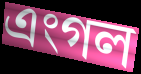
এংগল